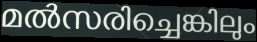
മൽസരിച്ചെങ്കിലും